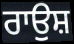
ਰਾਉਸ਼